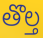
తొల్త